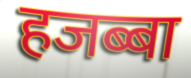
हजब्बा